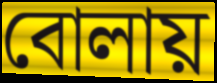
বোলায়